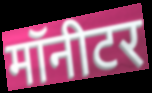
मॉनीटर